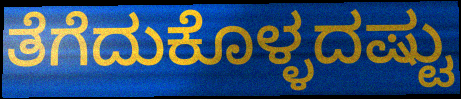
ತೆಗೆದುಕೊಳ್ಳದಷ್ಟು